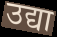
उद्या